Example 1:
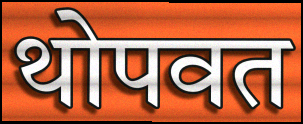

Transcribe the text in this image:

थोपवत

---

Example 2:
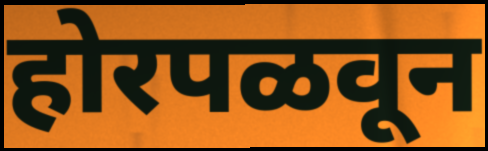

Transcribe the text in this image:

होरपळवून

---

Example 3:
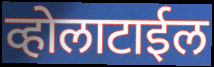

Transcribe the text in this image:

व्होलाटाईल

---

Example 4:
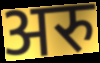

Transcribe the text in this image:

अरु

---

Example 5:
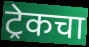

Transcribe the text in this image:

ट्रेकचा